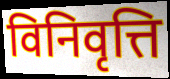
विनिवृत्ति